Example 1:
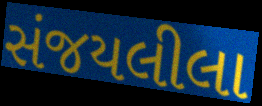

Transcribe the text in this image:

સંજયલીલા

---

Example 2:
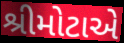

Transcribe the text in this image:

શ્રીમોટાએ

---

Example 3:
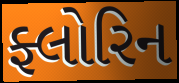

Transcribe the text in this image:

ફ્લોરિન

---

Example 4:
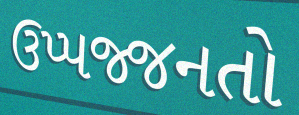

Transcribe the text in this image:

ઉપ્પજ્જનતો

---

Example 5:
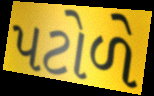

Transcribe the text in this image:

પટોળે